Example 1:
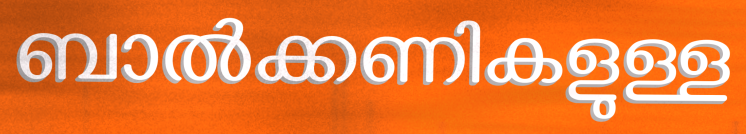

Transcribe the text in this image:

ബാൽക്കണികളുള്ള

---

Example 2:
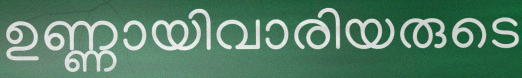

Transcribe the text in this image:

ഉണ്ണായിവാരിയരുടെ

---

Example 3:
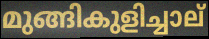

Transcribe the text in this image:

മുങ്ങികുളിച്ചാല്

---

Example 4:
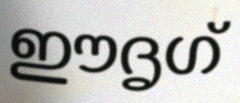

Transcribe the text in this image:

ഈദൃഗ്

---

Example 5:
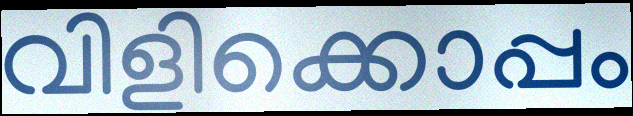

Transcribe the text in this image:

വിളിക്കൊപ്പം